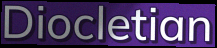
Diocletian